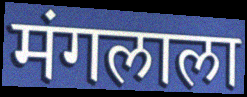
मंगलाला